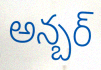
అన్బర్